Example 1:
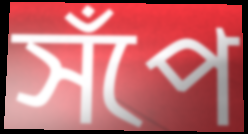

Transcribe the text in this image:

সঁপে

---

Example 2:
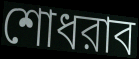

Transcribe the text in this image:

শোধরাব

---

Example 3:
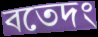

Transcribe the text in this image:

বতেদং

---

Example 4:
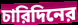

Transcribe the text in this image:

চারিদিনের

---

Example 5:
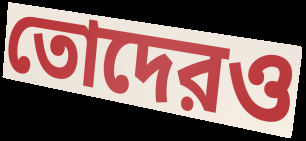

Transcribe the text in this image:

তোদেরও